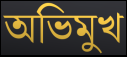
অভিমুখ